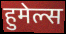
हुमेल्स